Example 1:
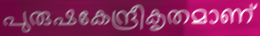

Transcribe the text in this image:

പുരുഷകേന്ദ്രീകൃതമാണ്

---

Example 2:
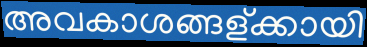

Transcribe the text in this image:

അവകാശങ്ങള്ക്കായി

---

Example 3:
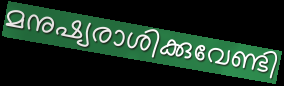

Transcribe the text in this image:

മനുഷ്യരാശിക്കുവേണ്ടി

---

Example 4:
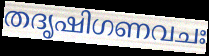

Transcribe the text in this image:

തദൃഷിഗണവചഃ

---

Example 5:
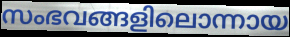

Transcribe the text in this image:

സംഭവങ്ങളിലൊന്നായ